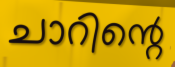
ചാറിന്റെ